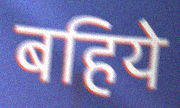
बहिये